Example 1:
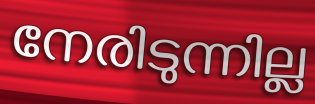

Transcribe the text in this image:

നേരിടുന്നില്ല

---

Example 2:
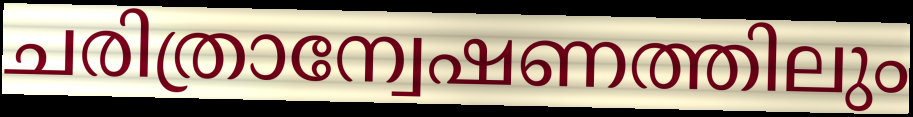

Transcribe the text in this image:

ചരിത്രാന്വേഷണത്തിലും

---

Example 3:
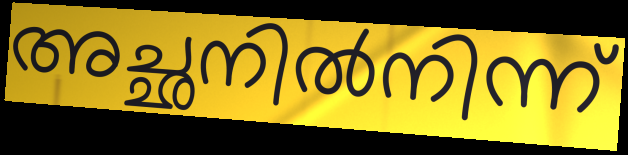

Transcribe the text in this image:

അച്ഛനിൽനിന്ന്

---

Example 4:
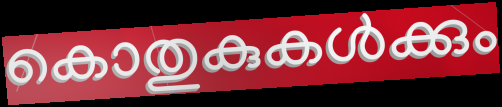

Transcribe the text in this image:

കൊതുകുകൾക്കും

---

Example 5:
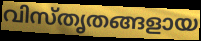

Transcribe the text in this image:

വിസ്തൃതങ്ങളായ